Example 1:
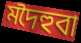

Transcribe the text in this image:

মদৈহুবা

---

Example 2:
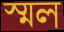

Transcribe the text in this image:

স্মল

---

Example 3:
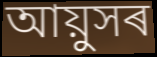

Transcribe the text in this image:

আয়ুসৰ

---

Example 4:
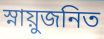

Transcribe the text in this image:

স্নায়ুজনিত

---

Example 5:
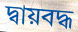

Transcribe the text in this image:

দ্বায়বদ্ধ